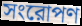
সংরোপণ